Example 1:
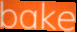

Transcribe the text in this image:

bake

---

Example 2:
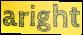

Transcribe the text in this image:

aright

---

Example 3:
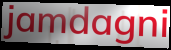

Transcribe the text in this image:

jamdagni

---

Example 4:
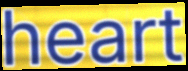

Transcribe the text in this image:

heart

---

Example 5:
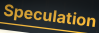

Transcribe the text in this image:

Speculation